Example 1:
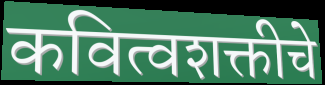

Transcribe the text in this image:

कवित्वशक्तीचे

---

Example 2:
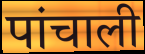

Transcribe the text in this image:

पांचाली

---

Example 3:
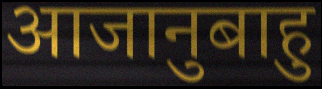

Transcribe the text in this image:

आजानुबाहु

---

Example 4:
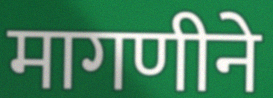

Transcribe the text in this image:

मागणीने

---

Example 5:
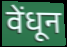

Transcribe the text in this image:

वेंधून